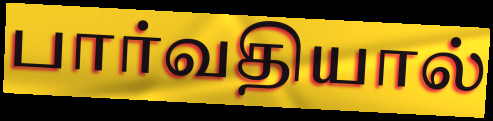
பார்வதியால்